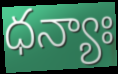
ధన్యాః